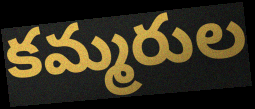
కమ్మరుల